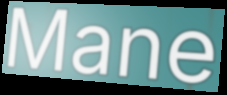
Mane